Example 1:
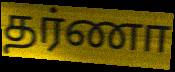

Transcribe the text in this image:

தர்ணா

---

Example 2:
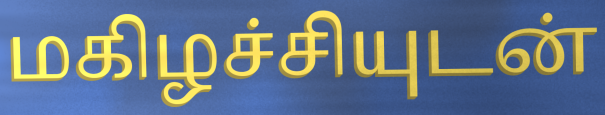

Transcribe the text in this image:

மகிழச்சியுடன்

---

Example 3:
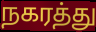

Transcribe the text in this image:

நகரத்து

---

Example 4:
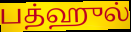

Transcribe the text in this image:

பத்ஹுல்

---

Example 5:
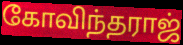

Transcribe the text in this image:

கோவிந்தராஜ்